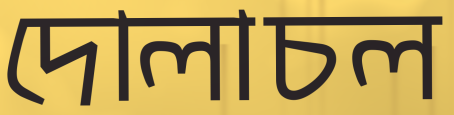
দোলাচল